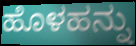
ಹೊಳಹನ್ನು